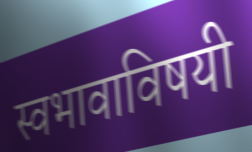
स्वभावाविषयी